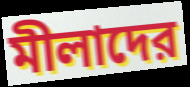
মীলাদের